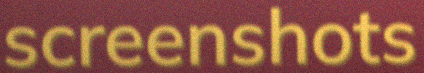
screenshots